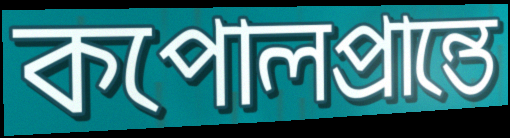
কপোলপ্রান্তে